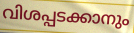
വിശപ്പടക്കാനും